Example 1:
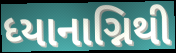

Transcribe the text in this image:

ધ્યાનાગ્નિથી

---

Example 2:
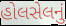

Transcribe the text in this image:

હોલસેલનું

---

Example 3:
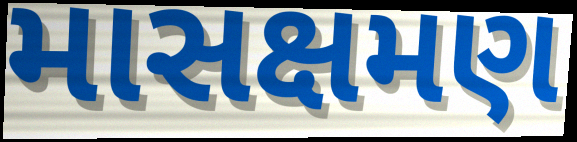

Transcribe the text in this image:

માસક્ષમણ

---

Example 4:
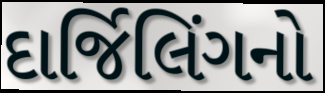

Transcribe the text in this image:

દાર્જિલિંગનો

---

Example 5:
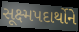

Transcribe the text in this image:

સૂક્ષ્મપદાર્થોને